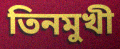
তিনমুখী